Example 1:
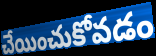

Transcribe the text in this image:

చేయించుకోవడం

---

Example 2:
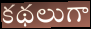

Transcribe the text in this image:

కథలుగా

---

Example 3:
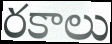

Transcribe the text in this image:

రకాలు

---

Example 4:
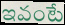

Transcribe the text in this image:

ఇవంటే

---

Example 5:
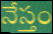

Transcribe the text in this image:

నేస్తం